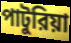
পাটুরিয়া